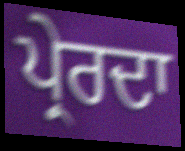
ਪ੍ਰੇਰਦਾ